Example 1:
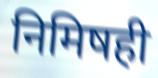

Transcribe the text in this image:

निमिषही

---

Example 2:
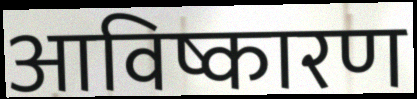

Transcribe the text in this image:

आविष्कारण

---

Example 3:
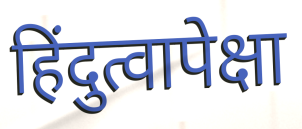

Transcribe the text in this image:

हिंदुत्वापेक्षा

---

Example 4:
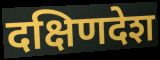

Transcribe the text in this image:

दक्षिणदेश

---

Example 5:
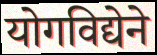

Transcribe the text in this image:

योगविद्येने